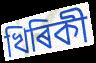
খিৰিকী